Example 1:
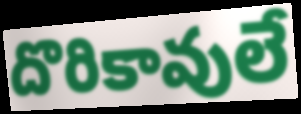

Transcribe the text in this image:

దొరికావులే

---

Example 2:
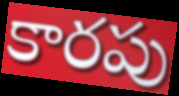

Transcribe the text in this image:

కారపు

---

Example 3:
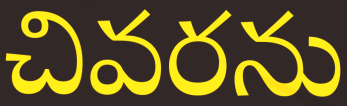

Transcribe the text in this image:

చివరను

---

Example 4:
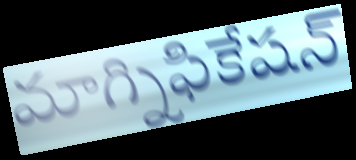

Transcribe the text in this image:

మాగ్నిఫికేషన్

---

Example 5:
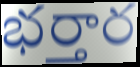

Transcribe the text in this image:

భర్తార